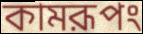
কামরূপং